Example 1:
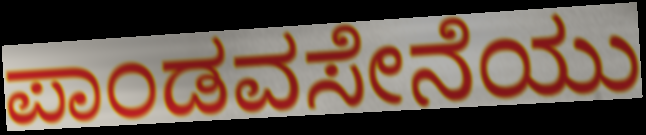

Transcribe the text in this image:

ಪಾಂಡವಸೇನೆಯು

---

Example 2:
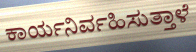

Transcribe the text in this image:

ಕಾರ್ಯನಿರ್ವಹಿಸುತ್ತಾಳೆ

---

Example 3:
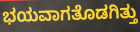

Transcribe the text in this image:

ಭಯವಾಗತೊಡಗಿತ್ತು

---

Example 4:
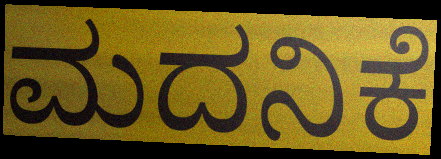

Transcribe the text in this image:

ಮದನಿಕೆ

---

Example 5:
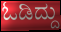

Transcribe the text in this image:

ಓಡಿದ್ದು